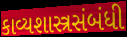
કાવ્યશાસ્ત્રસંબંધી